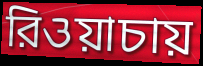
রিওয়াচায়